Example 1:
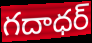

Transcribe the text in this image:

గదాధర్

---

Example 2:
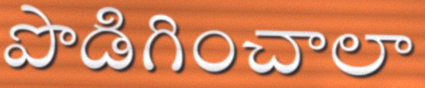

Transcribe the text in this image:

పొడిగించాలా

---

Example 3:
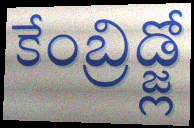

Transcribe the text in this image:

కేంబ్రిడ్జ్లో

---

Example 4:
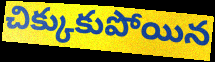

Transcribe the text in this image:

చిక్కుకుపోయిన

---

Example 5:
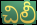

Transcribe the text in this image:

చిలీ